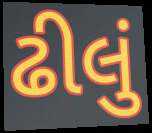
ઢીલું